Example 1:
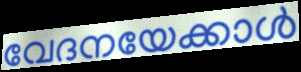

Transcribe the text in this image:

വേദനയേക്കാൾ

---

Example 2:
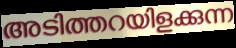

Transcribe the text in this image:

അടിത്തറയിളക്കുന്ന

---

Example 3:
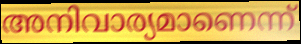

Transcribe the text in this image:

അനിവാര്യമാണെന്ന്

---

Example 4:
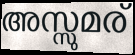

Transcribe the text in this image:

അസ്സുമര്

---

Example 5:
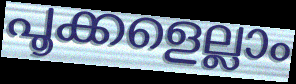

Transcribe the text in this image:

പൂക്കളെല്ലാം